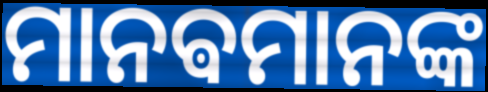
ମାନଵମାନଙ୍କ